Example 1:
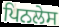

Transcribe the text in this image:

ਪਿਨਲੇਸ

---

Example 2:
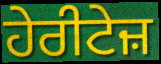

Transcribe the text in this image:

ਹੇਰੀਟੇਜ਼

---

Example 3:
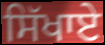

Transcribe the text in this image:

ਸਿੱਖਾਏ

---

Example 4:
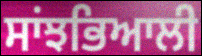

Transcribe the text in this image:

ਸਾਂਝਭਿਆਲੀ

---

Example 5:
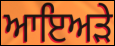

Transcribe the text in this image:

ਆਇਅੜੇ